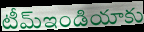
టీమ్ఇండియాకు